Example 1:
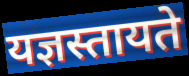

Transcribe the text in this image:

यज्ञस्तायते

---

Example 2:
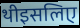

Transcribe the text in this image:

थीइसलिए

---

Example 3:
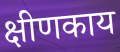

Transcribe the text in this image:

क्षीणकाय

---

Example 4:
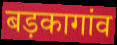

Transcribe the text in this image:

बड़कागांव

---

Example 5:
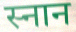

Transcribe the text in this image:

स्‍नान